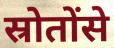
स्रोतोंसे